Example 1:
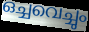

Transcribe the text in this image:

ഒച്ചവെച്ചും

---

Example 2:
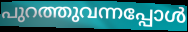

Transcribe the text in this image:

പുറത്തുവന്നപ്പോൾ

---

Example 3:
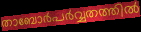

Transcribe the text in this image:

താബോർപർവ്വതത്തിൽ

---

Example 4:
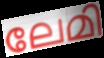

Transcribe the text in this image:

ലേമി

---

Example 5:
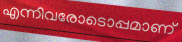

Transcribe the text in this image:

എന്നിവരോടൊപ്പമാണ്